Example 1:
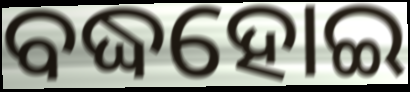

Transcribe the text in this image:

ବଦ୍ଧହୋଇ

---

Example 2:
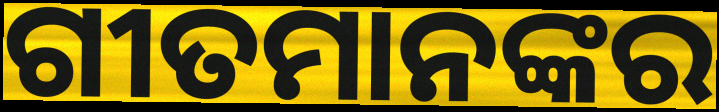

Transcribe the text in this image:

ଗୀତମାନଙ୍କର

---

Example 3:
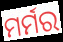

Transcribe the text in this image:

ମର୍ମର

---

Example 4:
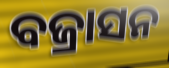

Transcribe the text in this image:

ବଜ୍ରାସନ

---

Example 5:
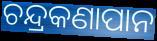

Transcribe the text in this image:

ଚନ୍ଦ୍ରକଣାପାନ